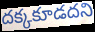
దక్కకూడదని